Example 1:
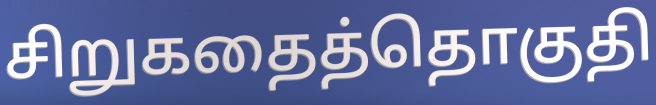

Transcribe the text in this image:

சிறுகதைத்தொகுதி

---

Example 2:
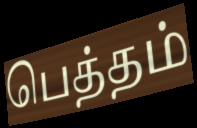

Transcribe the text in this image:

பெத்தம்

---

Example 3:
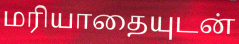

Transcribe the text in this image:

மரியாதையுடன்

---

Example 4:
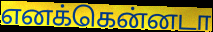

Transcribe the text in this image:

எனக்கென்னடா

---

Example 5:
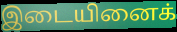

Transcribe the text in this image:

இடையினைக்